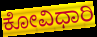
ಕೋವಿಧಾರಿ